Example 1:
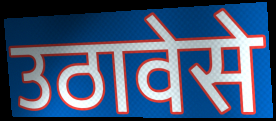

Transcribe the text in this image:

उठावेसे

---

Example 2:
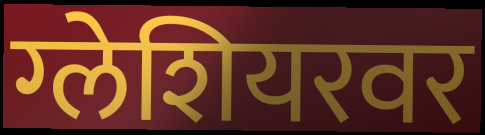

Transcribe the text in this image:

ग्लेशियरवर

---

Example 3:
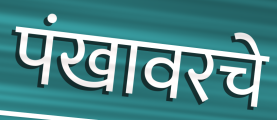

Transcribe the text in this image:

पंखावरचे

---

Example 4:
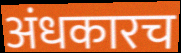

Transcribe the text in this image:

अंधकारच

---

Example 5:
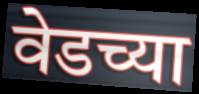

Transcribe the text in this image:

वेडच्या